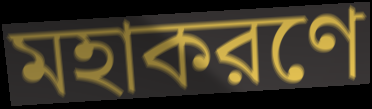
মহাকরণে